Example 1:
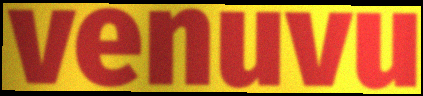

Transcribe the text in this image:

venuvu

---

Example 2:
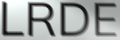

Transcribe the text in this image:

LRDE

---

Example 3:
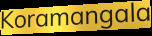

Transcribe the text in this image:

Koramangala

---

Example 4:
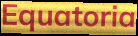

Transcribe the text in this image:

Equatoria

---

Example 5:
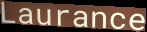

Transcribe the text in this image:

Laurance